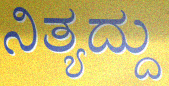
ನಿತ್ಯದ್ದು